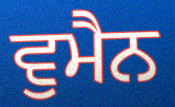
ਵੁਮੈਨ